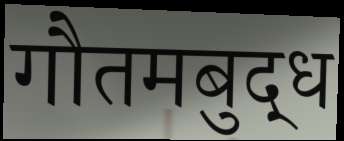
गौतमबुद्ध